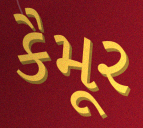
કૈમૂર